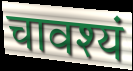
चावश्यं